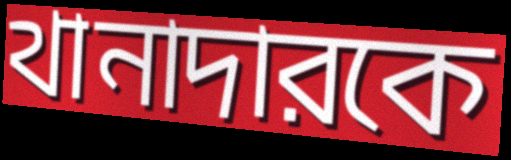
থানাদারকে